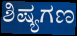
ಶಿಷ್ಯಗಣ